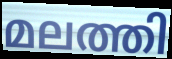
മലത്തി